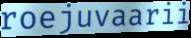
roejuvaarii